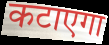
कटाएगा